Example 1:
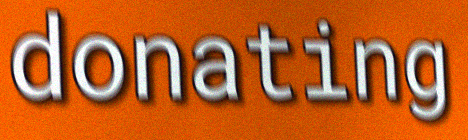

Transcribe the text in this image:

donating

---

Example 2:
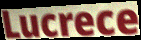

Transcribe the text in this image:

Lucrece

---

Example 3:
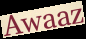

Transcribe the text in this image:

Awaaz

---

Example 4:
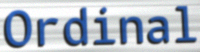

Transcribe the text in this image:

Ordinal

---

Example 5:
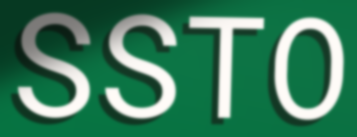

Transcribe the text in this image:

SSTO